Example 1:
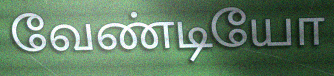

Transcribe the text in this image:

வேண்டியோ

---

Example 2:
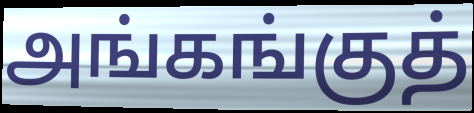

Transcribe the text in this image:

அங்கங்குத்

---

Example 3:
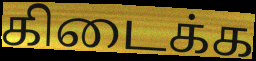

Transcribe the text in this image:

கிடைக்க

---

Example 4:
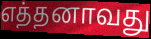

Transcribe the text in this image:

எத்தனாவது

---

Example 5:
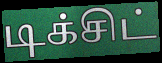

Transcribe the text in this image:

டிக்சிட்